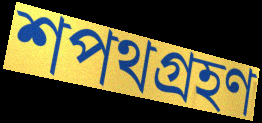
শপথগ্রহণ